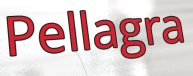
Pellagra